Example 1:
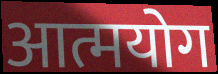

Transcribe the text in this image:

आत्मयोग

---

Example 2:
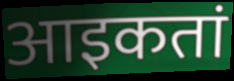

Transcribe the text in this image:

आइकतां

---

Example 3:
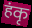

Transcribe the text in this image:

हंकृ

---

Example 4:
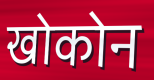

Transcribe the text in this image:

खोकोन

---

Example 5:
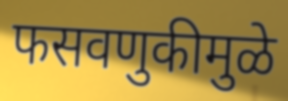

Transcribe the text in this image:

फसवणुकीमुळे